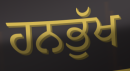
ਹਨਭੁੱਖ